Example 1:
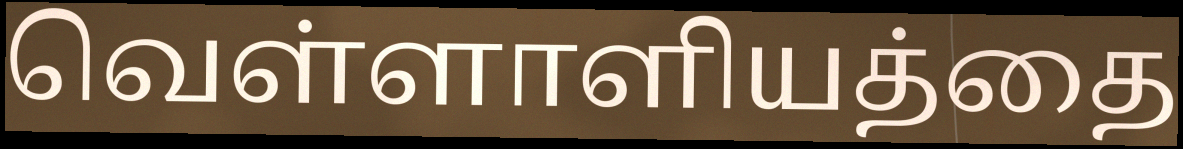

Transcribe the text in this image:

வெள்ளாளியத்தை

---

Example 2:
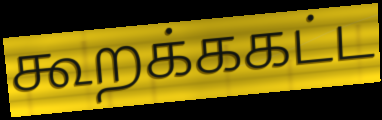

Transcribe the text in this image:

கூறக்ககட்ட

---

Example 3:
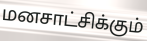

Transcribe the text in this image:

மனசாட்சிக்கும்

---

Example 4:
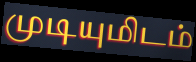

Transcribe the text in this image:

முடியுமிடம்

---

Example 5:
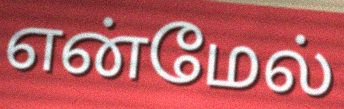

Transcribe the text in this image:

என்மேல்